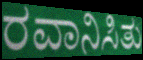
ರವಾನಿಸಿತು